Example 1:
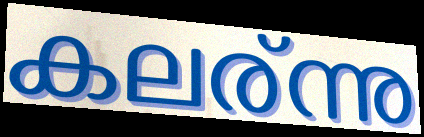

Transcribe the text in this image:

കലര്ന്നു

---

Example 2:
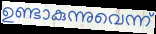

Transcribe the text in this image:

ഉണ്ടാകുന്നുവെന്ന്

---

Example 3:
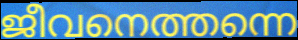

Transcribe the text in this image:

ജീവനെത്തന്നെ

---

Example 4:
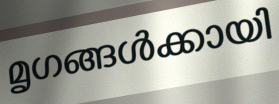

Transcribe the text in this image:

മൃഗങ്ങൾക്കായി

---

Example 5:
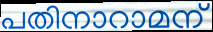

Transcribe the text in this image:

പതിനാറാമന്